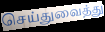
செய்துவைத்து